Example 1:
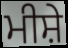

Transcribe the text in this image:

ਮੀਸ਼ੇ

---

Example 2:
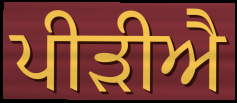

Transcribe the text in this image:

ਪੀੜੀਐ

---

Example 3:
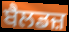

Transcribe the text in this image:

ਬੈਲਡਜ਼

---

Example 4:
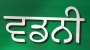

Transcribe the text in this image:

ਵਡਨੀ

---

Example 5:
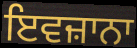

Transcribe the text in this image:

ਇਵਜ਼ਾਨਾ